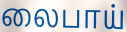
லைபாய்